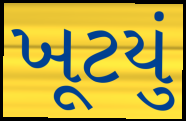
ખૂટયું